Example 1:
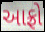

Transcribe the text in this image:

આફ્રો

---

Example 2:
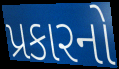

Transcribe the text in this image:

પ્રકારનો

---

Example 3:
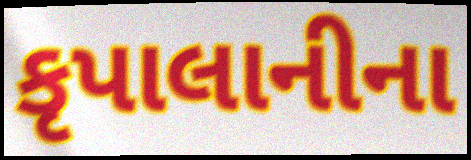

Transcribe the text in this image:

કૃપાલાનીના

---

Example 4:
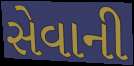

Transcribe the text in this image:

સેવાની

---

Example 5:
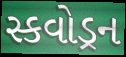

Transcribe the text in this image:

સ્કવોડ્રન